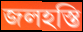
জলহস্তি